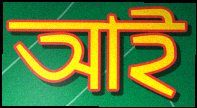
আই